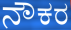
ನೌಕರ